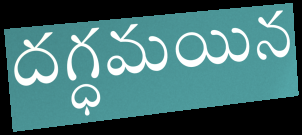
దగ్ధమయిన